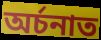
অৰ্চনাত